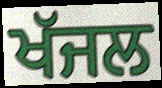
ਖੱਜਲ